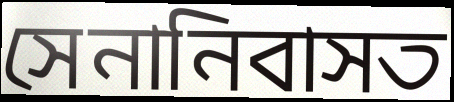
সেনানিবাসত